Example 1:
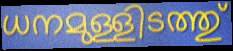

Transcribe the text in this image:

ധനമുള്ളിടത്തു്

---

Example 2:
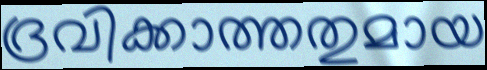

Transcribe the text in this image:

ദ്രവിക്കാത്തതുമായ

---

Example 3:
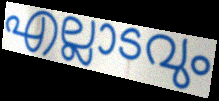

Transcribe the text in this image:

എല്ലാടവും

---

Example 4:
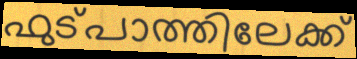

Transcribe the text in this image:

ഫുട്പാത്തിലേക്ക്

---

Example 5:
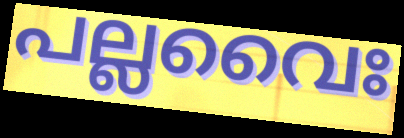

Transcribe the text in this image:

പല്ലവൈഃ